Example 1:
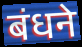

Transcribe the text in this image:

बंधने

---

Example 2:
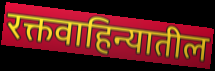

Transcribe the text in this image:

रक्तवाहिन्यातील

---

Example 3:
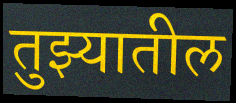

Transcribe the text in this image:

तुझ्यातील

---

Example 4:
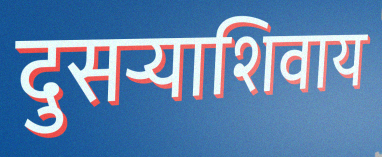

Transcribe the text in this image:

दुसऱ्याशिवाय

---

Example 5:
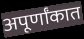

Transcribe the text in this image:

अपूर्णांकात